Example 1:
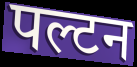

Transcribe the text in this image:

पल्टन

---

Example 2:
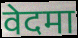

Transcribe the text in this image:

वेदमा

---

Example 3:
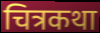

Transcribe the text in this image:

चित्रकथा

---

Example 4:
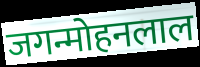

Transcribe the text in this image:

जगन्मोहनलाल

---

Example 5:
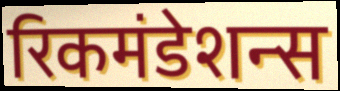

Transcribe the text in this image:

रिकमंडेशन्स